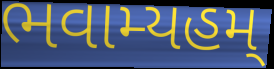
ભવામ્યહમ્